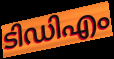
ടിഡിഎം